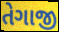
તેગાજી